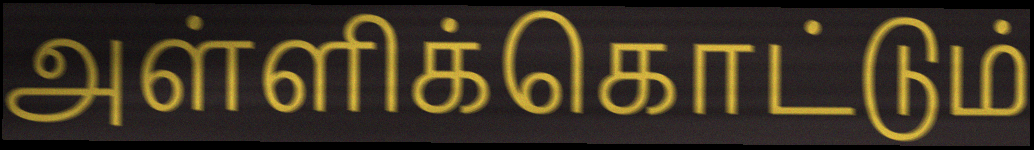
அள்ளிக்கொட்டும்